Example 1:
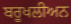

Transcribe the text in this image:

ਬਰੂਖਲੀਅਨ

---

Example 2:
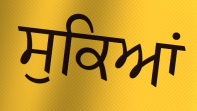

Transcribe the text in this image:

ਸੁਕਿਆਂ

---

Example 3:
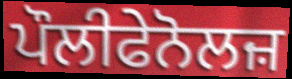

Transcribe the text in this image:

ਪੌਲੀਫੇਨੋਲਜ਼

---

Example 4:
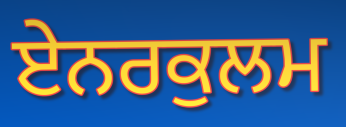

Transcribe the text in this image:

ਏਨਰਕੁਲਮ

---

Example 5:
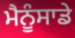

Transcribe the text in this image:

ਮੈਨੂੰਸਾਡੇ